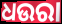
ଧଉରା